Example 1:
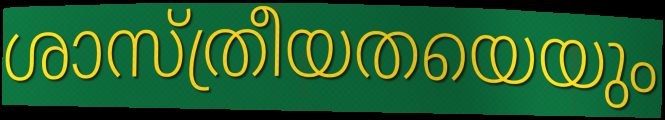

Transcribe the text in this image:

ശാസ്ത്രീയതയെയും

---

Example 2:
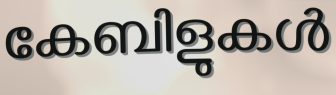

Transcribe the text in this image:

കേബിളുകൾ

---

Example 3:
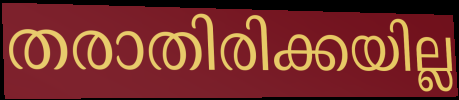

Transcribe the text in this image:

തരാതിരിക്കയില്ല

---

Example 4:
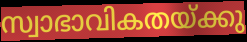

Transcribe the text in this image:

സ്വാഭാവികതയ്ക്കു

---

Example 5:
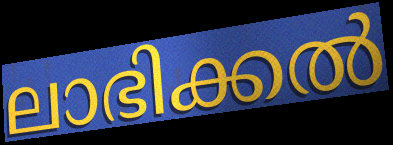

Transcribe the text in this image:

ലാഭിക്കൽ